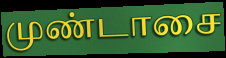
முண்டாசை